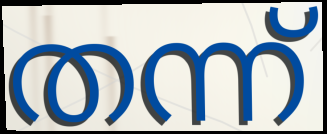
തന്ന്